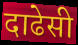
दाढेसी